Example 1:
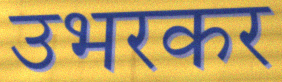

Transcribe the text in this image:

उभरकर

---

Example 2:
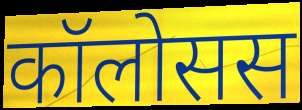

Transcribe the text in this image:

कॉलोसस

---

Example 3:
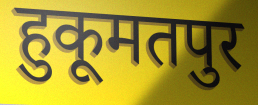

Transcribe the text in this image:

हुकूमतपुर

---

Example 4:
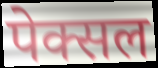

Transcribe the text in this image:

पेक्सल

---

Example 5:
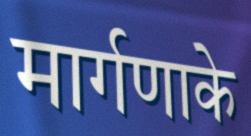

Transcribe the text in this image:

मार्गणाके